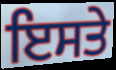
ਇਸਤੇ